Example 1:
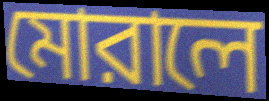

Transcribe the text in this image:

মোরালে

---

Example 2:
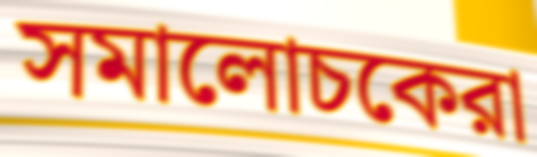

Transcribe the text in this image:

সমালোচকেরা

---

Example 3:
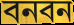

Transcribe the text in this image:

বনবন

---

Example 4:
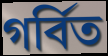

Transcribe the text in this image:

গর্বিত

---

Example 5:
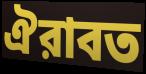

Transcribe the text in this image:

ঐরাবত